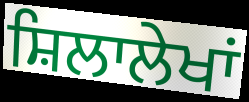
ਸ਼ਿਲਾਲੇਖਾਂ